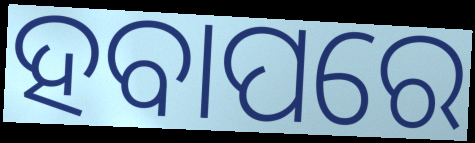
ହବାପରେ